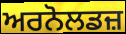
ਅਰਨੋਲਡਜ਼